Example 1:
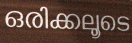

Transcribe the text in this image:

ഒരിക്കലൂടെ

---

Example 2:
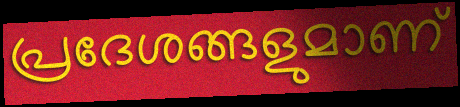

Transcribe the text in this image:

പ്രദേശങ്ങളുമാണ്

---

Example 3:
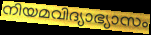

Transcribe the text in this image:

നിയമവിദ്യാഭ്യാസം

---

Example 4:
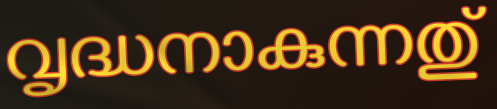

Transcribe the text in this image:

വൃദ്ധനാകുന്നതു്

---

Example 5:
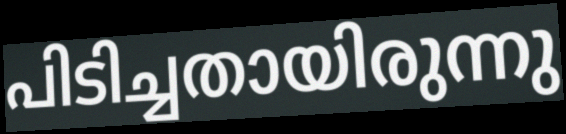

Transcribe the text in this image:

പിടിച്ചതായിരുന്നു